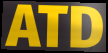
ATD